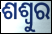
ଶଶ୍ୱୁର